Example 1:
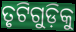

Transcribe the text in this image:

ତୃଟିଗୁଡ଼ିକୁ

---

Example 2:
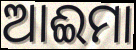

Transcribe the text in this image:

ଆଈମା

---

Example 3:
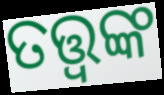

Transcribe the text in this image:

ତତ୍ତ୍ବଙ୍କ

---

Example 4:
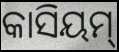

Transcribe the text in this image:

କାସିୟମ୍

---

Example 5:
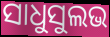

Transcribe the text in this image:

ସାଧୁସୁଲଭ